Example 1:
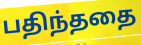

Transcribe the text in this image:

பதிந்ததை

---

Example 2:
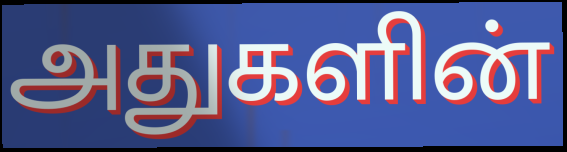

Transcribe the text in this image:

அதுகளின்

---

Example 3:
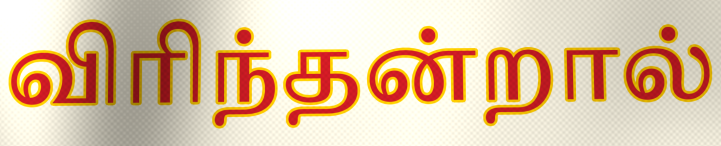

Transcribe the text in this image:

விரிந்தன்றால்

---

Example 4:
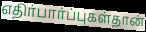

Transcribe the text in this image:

எதிர்பார்ப்புகள்தான்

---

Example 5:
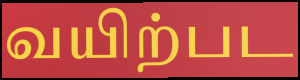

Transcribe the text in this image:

வயிற்பட